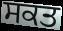
ਸਕਤ